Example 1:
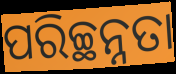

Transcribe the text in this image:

ପରିଚ୍ଛନ୍ନତା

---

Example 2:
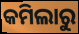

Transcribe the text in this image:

କମିଲାରୁ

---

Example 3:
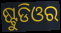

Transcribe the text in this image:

ଷ୍ଟୁଡିଓର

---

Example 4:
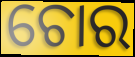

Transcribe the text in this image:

ଚୋର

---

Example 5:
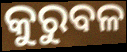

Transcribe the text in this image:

କୁରୁବଳ